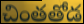
చింతతోడ